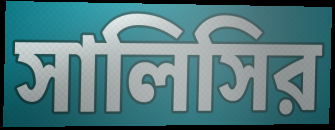
সালিসির